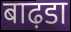
बाढ़डा